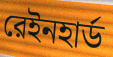
রেইনহার্ড